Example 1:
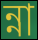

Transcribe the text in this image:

ন্না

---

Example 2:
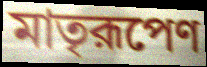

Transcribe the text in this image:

মাতৃরূপেণ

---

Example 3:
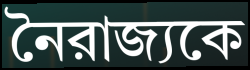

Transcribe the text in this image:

নৈরাজ্যকে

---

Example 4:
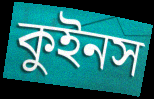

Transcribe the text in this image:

কুইনস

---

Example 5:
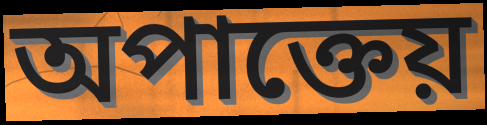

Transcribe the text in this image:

অপাক্তেয়